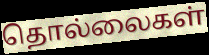
தொல்லைகள்